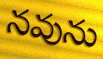
నవును